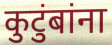
कुटुंबांना